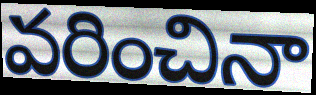
వరించినా